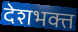
देशभक्त